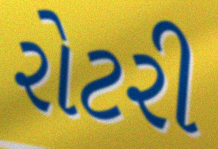
રોટરી